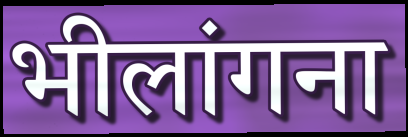
भीलांगना